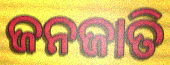
ଜନଜାତି